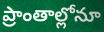
ప్రాంతాల్లోనూ